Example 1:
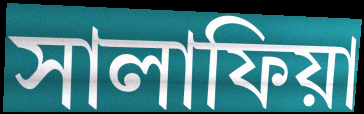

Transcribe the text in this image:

সালাফিয়া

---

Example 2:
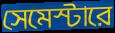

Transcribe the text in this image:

সেমেস্টারে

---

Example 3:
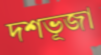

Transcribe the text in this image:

দশভূজা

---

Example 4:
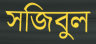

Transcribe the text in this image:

সজিবুল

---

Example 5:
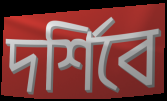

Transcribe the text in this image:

দর্শিবে